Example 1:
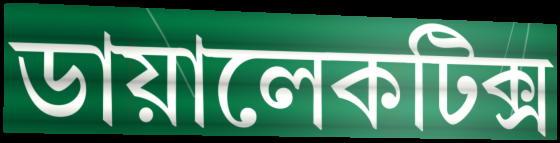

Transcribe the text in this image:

ডায়ালেকটিক্স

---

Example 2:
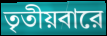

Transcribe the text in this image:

তৃতীয়বারে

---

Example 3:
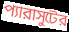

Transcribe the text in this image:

প্যারাসুটের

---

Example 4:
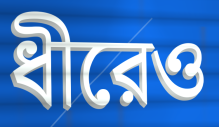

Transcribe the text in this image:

ধীরেও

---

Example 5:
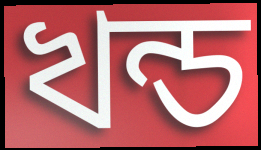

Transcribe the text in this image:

খন্ড